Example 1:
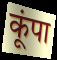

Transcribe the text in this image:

कूंपा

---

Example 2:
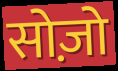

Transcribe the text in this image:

सोज़ो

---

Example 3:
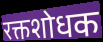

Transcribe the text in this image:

रक्तशोधक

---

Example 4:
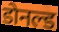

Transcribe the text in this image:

डोनल्‍ड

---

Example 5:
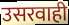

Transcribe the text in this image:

उसरवाही